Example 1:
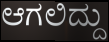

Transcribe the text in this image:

ಆಗಲಿದ್ದು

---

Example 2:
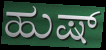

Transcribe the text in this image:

ಹುಷ್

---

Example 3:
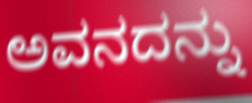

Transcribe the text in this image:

ಅವನದನ್ನು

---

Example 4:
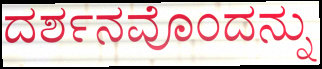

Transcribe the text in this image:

ದರ್ಶನವೊಂದನ್ನು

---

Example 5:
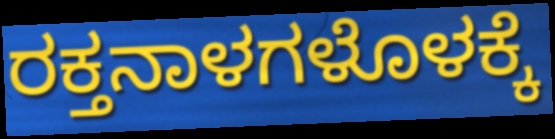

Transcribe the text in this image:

ರಕ್ತನಾಳಗಳೊಳಕ್ಕೆ